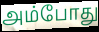
அம்போது